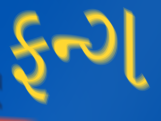
ફન્ગ